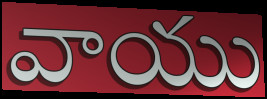
వాయు